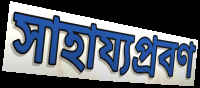
সাহায্যপ্রবণ